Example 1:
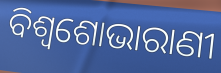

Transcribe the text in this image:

ବିଶ୍ୱଶୋଭାରାଣୀ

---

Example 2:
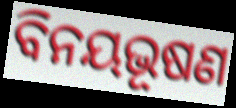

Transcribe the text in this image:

ବିନୟଭୂଷଣ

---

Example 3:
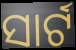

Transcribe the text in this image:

ସାର୍ଟ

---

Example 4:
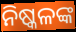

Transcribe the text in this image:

ନିଷ୍କଳଙ୍କ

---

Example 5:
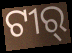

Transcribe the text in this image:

ଟୀର୍